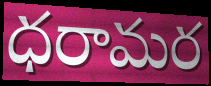
ధరామర